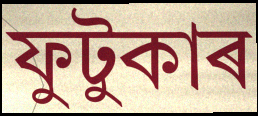
ফুটুকাৰ